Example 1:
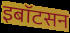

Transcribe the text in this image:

इबॉटसन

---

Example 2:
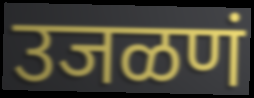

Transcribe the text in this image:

उजळणं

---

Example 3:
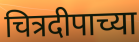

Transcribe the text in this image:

चित्रदीपाच्या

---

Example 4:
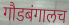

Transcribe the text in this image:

गौडबंगालच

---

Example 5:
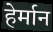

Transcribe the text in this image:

हेर्मान